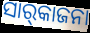
ସାର୍‌କାଜନା